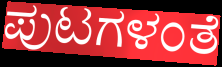
ಪುಟಗಳಂತೆ